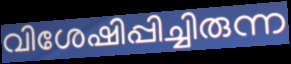
വിശേഷിപ്പിച്ചിരുന്ന